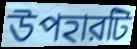
উপহারটি